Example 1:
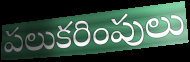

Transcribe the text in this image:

పలుకరింపులు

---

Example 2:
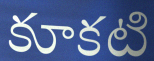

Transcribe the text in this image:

కూకటి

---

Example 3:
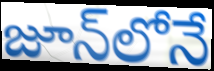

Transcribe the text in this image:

జూన్‌లోనే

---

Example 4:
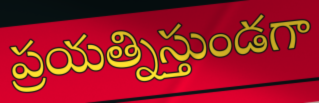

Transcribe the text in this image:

ప్రయత్నిస్తుండగా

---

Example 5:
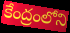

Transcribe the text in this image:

కేంద్రంలోని